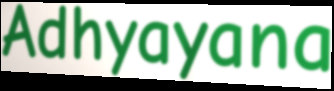
Adhyayana